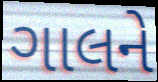
ગાલને